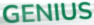
GENIUS